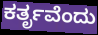
ಕರ್ತೃವೆಂದು